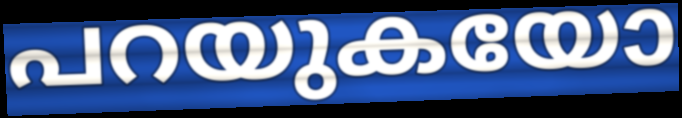
പറയുകയോ